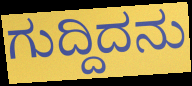
ಗುದ್ದಿದನು